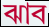
ঝাব